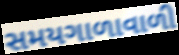
સમયગાળાવાળી